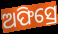
ଅଫିସ୍ରେ